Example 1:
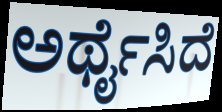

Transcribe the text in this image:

ಅರ್ಥೈಸಿದೆ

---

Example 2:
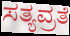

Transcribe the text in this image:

ಸತ್ಯವ್ರತೆ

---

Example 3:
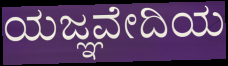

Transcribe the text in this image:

ಯಜ್ಞವೇದಿಯ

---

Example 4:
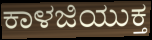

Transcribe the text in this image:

ಕಾಳಜಿಯುಕ್ತ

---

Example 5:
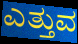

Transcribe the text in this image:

ಎತ್ತುವ